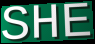
SHE